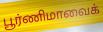
பூர்ணிமாவைக்